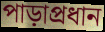
পাড়াপ্রধান